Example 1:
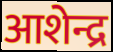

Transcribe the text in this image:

आशेन्द्र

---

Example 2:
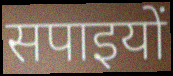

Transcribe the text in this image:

सपाइयों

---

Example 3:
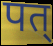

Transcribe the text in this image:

पत्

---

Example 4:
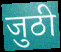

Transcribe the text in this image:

जुठी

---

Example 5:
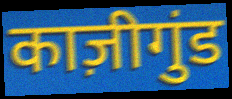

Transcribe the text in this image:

काज़ीगुंड